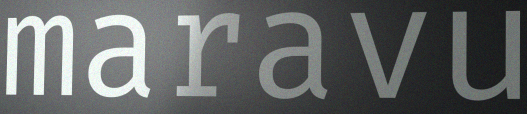
maravu